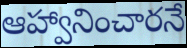
ఆహ్వానించారనే